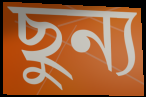
ছুন্য